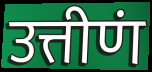
उत्तीणं